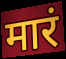
मारं